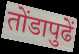
तोंडापुढें